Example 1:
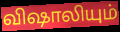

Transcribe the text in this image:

விஷாலியும்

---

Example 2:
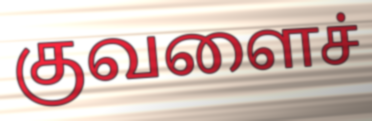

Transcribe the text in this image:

குவளைச்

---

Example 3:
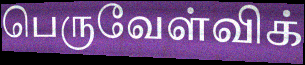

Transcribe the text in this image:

பெருவேள்விக்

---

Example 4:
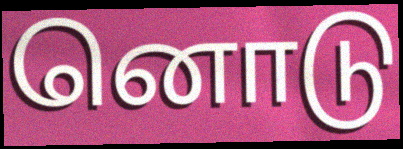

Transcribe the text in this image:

னொடு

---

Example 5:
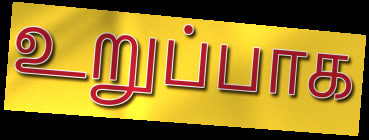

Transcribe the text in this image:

உறுப்பாக